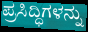
ಪ್ರಸಿದ್ಧಿಗಳನ್ನು